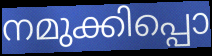
നമുക്കിപ്പൊ